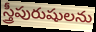
స్త్రీపురుషులను